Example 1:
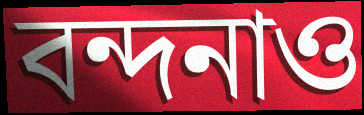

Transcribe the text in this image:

বন্দনাও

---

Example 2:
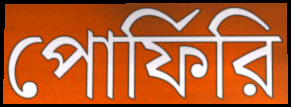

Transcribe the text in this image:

পোর্ফিরি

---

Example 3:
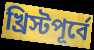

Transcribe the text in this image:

খ্রিস্টপূর্বে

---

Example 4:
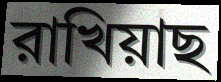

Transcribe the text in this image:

রাখিয়াছ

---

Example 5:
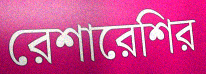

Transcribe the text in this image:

রেশারেশির